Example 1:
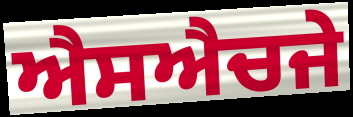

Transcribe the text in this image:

ਐਸਐਚਜੇ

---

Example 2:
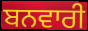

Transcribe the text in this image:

ਬਨਵਾਰੀ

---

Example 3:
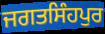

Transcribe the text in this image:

ਜਗਤਸਿੰਹਪੁਰ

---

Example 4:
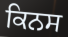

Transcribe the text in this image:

ਕਿਨਸ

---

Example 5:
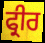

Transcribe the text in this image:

ਫ੍ਰੀਰ